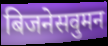
बिजनेसवुमन